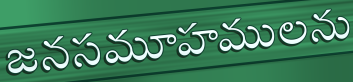
జనసమూహములను